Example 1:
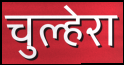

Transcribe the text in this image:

चुल्हेरा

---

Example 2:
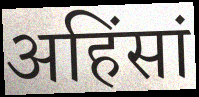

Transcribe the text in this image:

अहिंसां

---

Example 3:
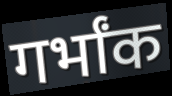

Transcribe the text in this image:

गर्भांक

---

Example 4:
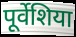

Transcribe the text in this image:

पूर्वेशिया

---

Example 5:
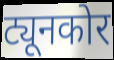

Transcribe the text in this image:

ट्यूनकोर